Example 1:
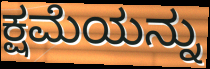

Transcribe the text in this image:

ಕ್ಷಮೆಯನ್ನು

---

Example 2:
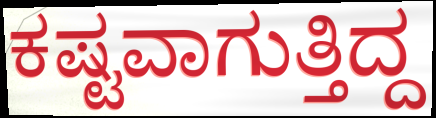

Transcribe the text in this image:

ಕಷ್ಟವಾಗುತ್ತಿದ್ದ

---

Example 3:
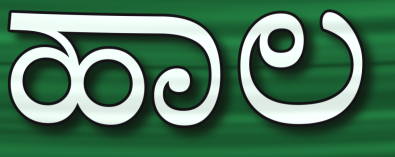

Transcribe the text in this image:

ಹಾಲ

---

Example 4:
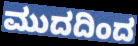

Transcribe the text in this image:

ಮುದದಿಂದ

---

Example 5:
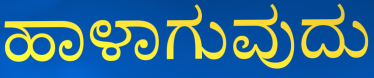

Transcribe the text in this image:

ಹಾಳಾಗುವುದು